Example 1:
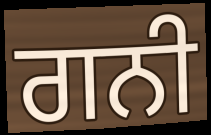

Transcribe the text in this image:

ਗਨੀ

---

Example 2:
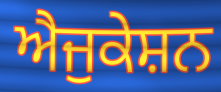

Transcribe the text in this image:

ਐਜੁਕੇਸ਼ਨ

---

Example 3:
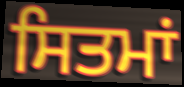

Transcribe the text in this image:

ਸਿਤਮਾਂ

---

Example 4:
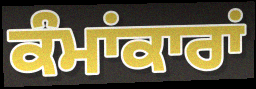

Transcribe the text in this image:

ਕੰਮਾਂਕਾਰਾਂ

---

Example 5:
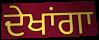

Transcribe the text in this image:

ਦੇਖਾਂਗਾ